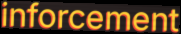
inforcement